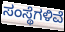
ಸಂಸ್ಥೆಗಳಿವೆ